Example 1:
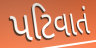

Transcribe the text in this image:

પટિવાતં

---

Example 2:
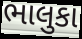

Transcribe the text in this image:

ભાલુકા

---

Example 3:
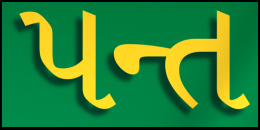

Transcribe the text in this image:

પન્ત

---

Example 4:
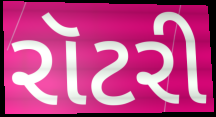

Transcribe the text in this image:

રૉટરી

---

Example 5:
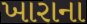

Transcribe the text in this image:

ખારાના